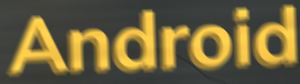
Android